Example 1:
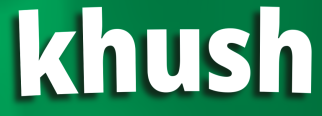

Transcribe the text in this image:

khush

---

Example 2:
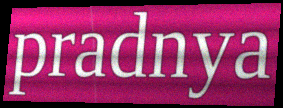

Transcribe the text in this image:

pradnya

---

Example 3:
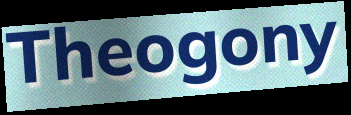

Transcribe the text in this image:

Theogony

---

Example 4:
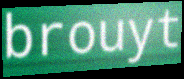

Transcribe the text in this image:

brouyt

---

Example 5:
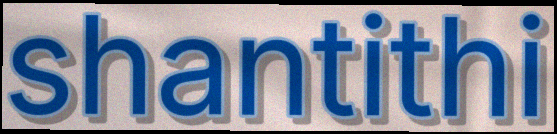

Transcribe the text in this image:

shantithi